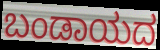
ಬಂಡಾಯದ